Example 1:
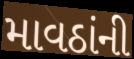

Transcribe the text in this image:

માવઠાંની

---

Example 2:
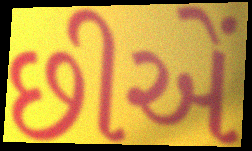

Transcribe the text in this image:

છીએં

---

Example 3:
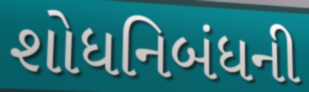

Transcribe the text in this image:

શોધનિબંધની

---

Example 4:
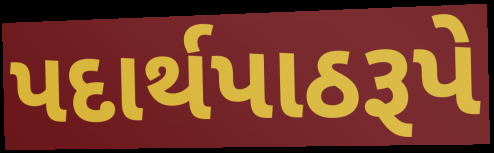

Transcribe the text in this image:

પદાર્થપાઠરૂપે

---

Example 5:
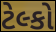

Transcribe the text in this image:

ટેલ્કો